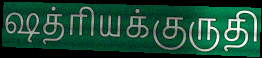
ஷத்ரியக்குருதி